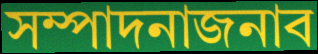
সম্পাদনাজনাব